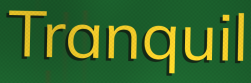
Tranquil